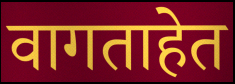
वागताहेत